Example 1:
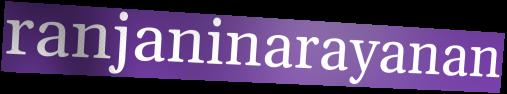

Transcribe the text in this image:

ranjaninarayanan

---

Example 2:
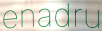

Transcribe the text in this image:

enadru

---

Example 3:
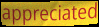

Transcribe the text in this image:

appreciated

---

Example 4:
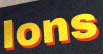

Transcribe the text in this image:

Ions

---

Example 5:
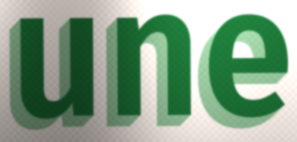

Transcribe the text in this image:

une